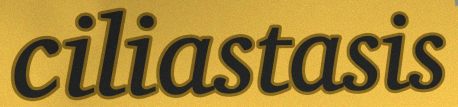
ciliastasis